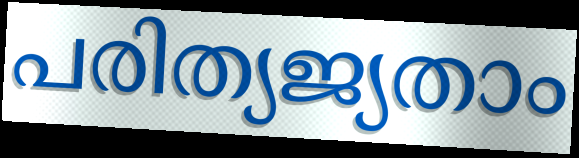
പരിത്യജ്യതാം